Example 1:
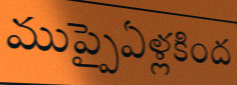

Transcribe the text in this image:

ముప్పైఏళ్లకింద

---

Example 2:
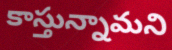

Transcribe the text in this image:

కాస్తున్నామని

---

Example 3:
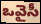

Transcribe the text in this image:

ఒవైసీ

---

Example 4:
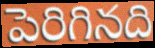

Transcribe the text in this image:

పెరిగినది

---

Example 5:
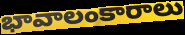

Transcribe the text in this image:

భావాలంకారాలు